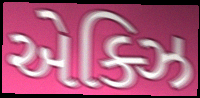
એક્ઝિ